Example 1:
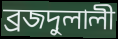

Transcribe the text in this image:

ব্রজদুলালী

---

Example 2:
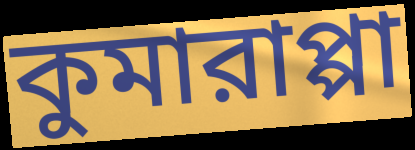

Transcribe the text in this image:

কুমারাপ্পা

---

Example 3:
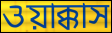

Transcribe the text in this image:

ওয়াক্কাস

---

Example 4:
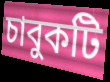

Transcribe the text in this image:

চাবুকটি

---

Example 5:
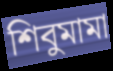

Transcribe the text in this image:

শিবুমামা